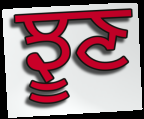
ਝੂਣ